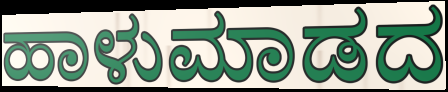
ಹಾಳುಮಾಡದ